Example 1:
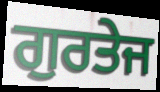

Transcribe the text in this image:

ਗੁਰਤੇਜ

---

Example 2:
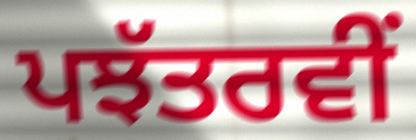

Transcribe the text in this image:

ਪਝੱਤਰਵੀਂ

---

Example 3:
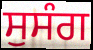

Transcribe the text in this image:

ਸੁਸੰਗ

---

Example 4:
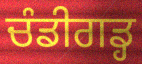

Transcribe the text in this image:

ਚੰਡੀਗਡ੍ਹ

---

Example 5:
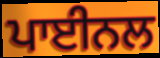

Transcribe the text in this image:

ਪਾਈਨਲ